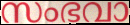
സംഭവാ